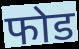
फोड